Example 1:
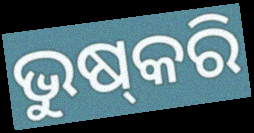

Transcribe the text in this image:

ଭୁଷ୍‍କରି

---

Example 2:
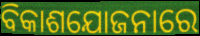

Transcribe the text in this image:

ବିକାଶଯୋଜନାରେ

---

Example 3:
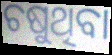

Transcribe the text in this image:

ଚଷୁଥିବା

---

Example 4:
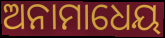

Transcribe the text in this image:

ଅନାମାଧେୟ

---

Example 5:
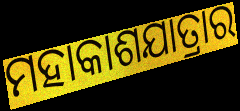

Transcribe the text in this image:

ମହାକାଶଯାତ୍ରାର